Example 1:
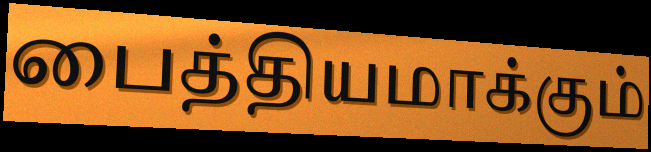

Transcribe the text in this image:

பைத்தியமாக்கும்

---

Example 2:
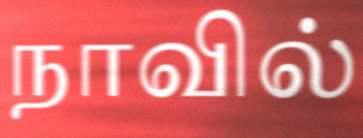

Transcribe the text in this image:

நாவில்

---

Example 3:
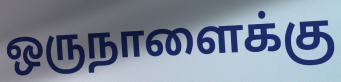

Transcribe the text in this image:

ஒருநாளைக்கு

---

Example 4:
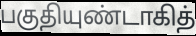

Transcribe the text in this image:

பகுதியுண்டாகித்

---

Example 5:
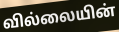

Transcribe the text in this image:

வில்லையின்